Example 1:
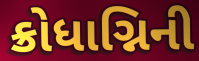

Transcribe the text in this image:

ક્રોધાગ્નિની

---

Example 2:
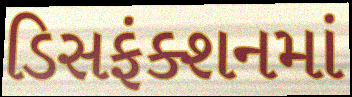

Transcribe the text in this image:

ડિસફંક્શનમાં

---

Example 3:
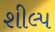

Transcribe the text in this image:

શીલ્પ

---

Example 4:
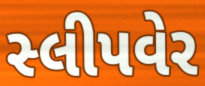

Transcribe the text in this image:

સ્લીપવેર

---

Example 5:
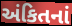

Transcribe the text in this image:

અંકિતનાં